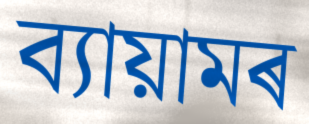
ব্যায়ামৰ